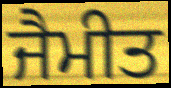
ਜੈਮੀਤ